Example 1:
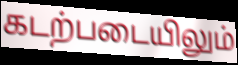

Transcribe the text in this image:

கடற்படையிலும்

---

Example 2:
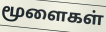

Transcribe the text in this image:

மூளைகள்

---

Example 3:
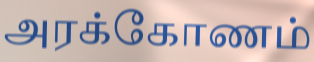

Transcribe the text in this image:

அரக்கோணம்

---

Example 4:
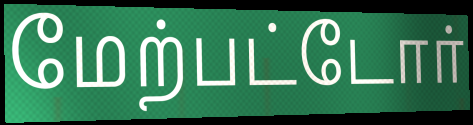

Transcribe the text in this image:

மேற்பட்டோர்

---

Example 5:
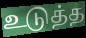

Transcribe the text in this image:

உடுத்த